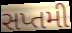
સપ્તમી